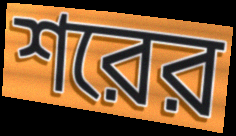
শরের